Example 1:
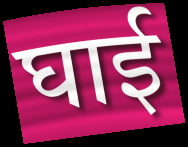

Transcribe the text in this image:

घाई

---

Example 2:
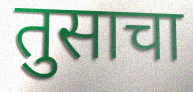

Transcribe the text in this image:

तुसाचा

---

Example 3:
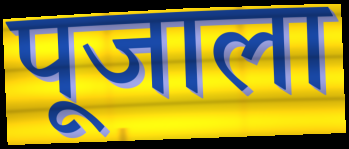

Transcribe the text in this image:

पूजाला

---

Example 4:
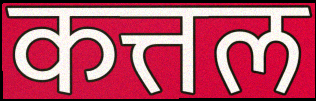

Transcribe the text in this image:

कत्तल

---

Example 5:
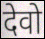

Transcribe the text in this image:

देवो